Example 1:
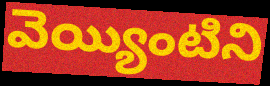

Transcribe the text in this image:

వెయ్యింటిని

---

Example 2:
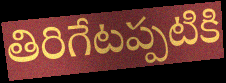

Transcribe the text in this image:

తిరిగేటప్పటికి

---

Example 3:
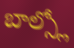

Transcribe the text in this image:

బాల్స్లో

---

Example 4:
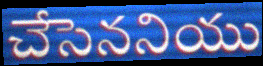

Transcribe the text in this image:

చేసెననియు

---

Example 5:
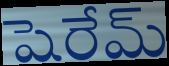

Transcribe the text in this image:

షెరేమ్